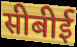
सीबीई